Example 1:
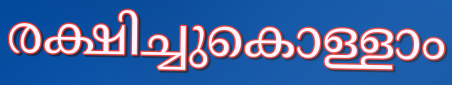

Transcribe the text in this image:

രക്ഷിച്ചുകൊള്ളാം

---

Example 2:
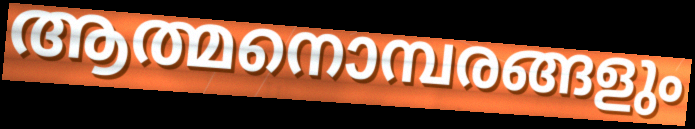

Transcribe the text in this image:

ആത്മനൊമ്പരങ്ങളും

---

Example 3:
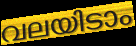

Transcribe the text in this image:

വലയിടാം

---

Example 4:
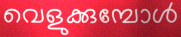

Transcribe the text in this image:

വെളുക്കുമ്പോൾ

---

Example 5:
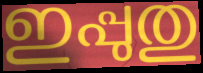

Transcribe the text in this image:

ഇപ്പുതു